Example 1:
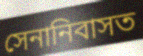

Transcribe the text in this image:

সেনানিবাসত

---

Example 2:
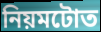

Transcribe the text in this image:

নিয়মটোত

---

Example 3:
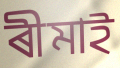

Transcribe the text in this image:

ৰীমাই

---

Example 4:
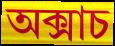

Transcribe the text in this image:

অক্সাচ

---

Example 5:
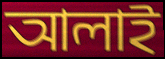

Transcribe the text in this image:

আলাই